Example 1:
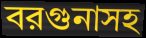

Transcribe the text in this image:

বরগুনাসহ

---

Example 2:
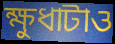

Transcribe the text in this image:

ক্ষুধাটাও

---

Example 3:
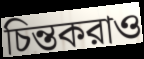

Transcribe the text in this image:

চিন্তকরাও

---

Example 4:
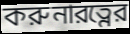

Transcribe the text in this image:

করুনারত্নের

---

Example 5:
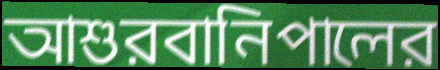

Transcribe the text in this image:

আশুরবানিপালের